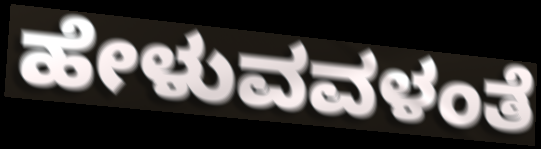
ಹೇಳುವವಳಂತೆ